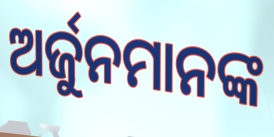
ଅର୍ଜୁନମାନଙ୍କ